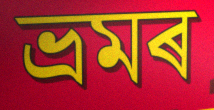
ভ্ৰমৰ